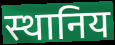
स्थानिय